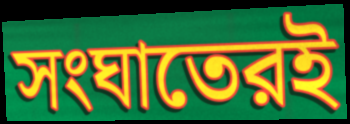
সংঘাতেরই